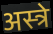
अस्त्रे